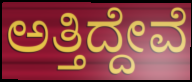
ಅತ್ತಿದ್ದೇವೆ